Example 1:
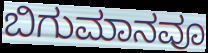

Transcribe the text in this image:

ಬಿಗುಮಾನವೂ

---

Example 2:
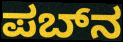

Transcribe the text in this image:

ಪಬ್‌ನ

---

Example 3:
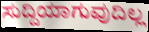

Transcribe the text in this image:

ಸುದ್ದಿಯಾಗುವುದಿಲ್ಲ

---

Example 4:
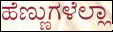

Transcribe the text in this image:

ಹೆಣ್ಣುಗಳೆಲ್ಲಾ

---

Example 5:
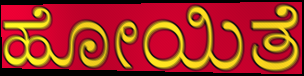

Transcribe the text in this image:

ಹೋಯಿತೆ